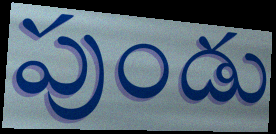
పుండు